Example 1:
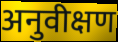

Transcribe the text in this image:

अनुवीक्षण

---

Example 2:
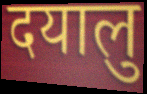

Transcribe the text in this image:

दयालु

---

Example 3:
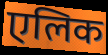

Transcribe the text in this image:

एलिक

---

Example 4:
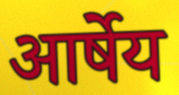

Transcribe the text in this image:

आर्षेय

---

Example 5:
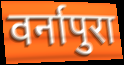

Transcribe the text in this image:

वर्नापुरा